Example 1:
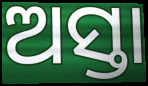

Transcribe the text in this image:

ଅସ୍ତା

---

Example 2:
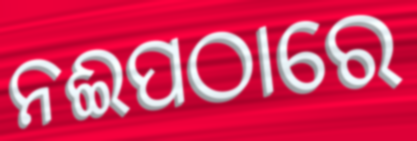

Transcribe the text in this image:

ନଈପଠାରେ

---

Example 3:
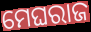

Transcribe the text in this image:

ମେଘରାଜ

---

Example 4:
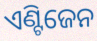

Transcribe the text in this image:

ଏଣ୍ଟିଜେନ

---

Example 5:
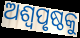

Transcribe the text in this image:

ଅଶ୍ୱପୃଷ୍ଠକୁ